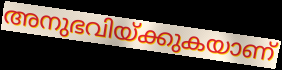
അനുഭവിയ്ക്കുകയാണ്